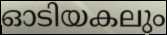
ഓടിയകലും